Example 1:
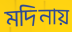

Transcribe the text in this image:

মদিনায়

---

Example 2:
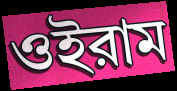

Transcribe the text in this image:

ওইরাম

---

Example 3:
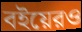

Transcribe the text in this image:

বইয়েরও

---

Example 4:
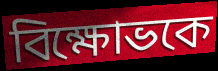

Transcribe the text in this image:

বিক্ষোভকে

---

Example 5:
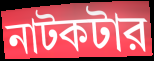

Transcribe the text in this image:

নাটকটার